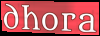
dhora